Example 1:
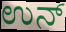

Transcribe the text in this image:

ಉನ್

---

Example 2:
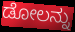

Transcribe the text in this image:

ಡೋಲನ್ನು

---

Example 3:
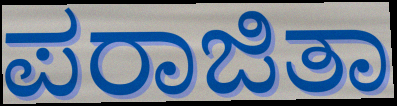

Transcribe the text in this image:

ಪರಾಜಿತಾ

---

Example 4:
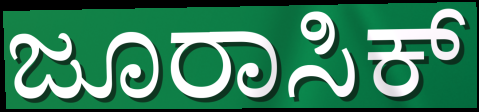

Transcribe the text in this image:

ಜೂರಾಸಿಕ್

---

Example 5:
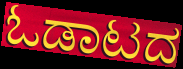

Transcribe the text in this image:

ಓಡಾಟದ